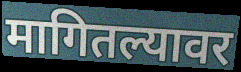
मागितल्यावर